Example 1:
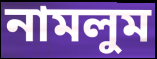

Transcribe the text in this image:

নামলুম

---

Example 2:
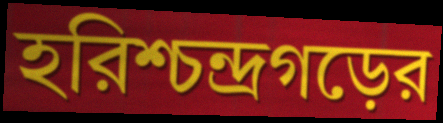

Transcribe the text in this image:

হরিশ্চন্দ্রগড়ের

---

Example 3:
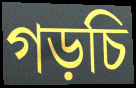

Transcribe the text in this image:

গড়চি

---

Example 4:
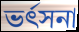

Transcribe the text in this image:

ভর্ৎসনা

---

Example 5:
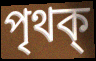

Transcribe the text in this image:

পৃথক্